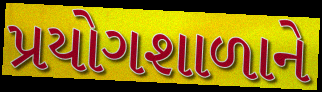
પ્રયોગશાળાને